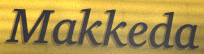
Makkeda